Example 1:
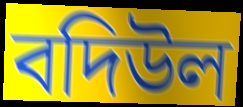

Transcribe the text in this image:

বদিউল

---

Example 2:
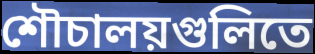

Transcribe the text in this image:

শৌচালয়গুলিতে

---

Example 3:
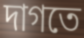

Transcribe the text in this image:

দাগতে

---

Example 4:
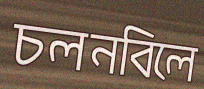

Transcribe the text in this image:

চলনবিলে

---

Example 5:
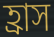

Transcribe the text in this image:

হ্রাস